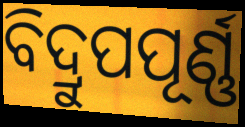
ବିଦ୍ରୁପପୂର୍ଣ୍ଣ